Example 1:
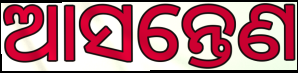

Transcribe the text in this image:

ଆସନ୍ତେଣ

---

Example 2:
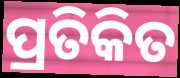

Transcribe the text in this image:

ପ୍ରତିକିତ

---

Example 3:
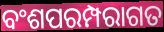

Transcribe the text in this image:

ବଂଶପରମ୍ପରାଗତ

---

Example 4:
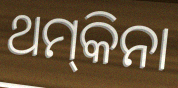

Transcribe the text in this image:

ଥମ୍‍କିନା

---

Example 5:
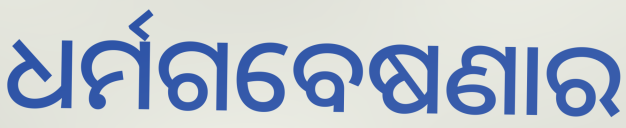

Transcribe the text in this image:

ଧର୍ମଗବେଷଣାର